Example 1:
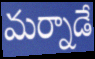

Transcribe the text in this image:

మర్నాడే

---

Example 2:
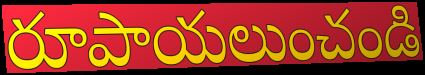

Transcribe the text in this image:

రూపాయలుంచండి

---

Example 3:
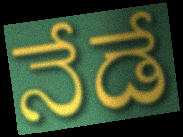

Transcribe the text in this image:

నేడే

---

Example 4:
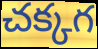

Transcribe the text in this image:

చక్కగ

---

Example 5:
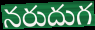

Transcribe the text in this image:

నరుదుగ